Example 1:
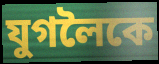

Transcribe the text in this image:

যুগলৈকে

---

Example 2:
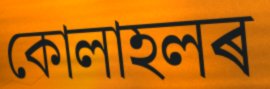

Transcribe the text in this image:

কোলাহলৰ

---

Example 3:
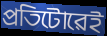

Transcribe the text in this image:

প্ৰতিটোৱেই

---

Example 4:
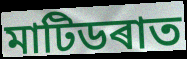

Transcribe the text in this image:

মাটিডৰাত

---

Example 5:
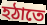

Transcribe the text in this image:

হঠাতে